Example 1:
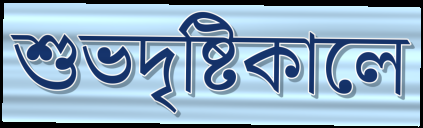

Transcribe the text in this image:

শুভদৃষ্টিকালে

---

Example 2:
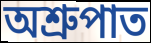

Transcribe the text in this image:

অশ্রুপাত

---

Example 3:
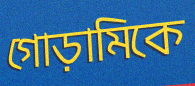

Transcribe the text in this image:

গোড়ামিকে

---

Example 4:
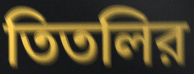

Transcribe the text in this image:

তিতলির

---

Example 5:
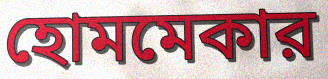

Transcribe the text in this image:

হোমমেকার